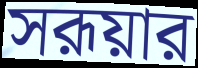
সরূয়ার